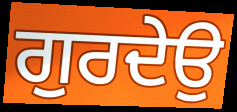
ਗੁਰਦੇਉ